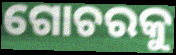
ଗୋଚରକୁ